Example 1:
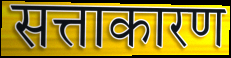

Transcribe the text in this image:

सत्ताकारण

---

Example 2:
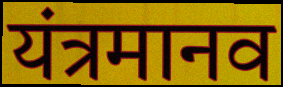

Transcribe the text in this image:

यंत्रमानव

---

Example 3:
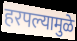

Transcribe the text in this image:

हरपल्यामुळे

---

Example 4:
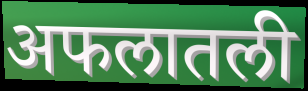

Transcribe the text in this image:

अफलातली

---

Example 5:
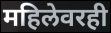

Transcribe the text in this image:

महिलेवरही